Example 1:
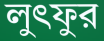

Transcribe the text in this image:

লুৎফুর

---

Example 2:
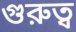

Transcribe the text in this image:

গুরুত্ব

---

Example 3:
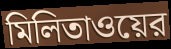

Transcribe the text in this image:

মিলিতাওয়ের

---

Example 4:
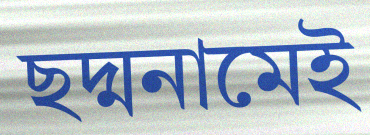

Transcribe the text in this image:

ছদ্মনামেই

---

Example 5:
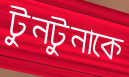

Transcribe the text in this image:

টুনটুনাকে